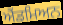
ਐਂਡਮਿਅਨ